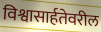
विश्वासार्हतेवरील